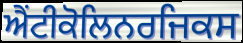
ਐਂਟੀਕੋਲਿਨਰਜਿਕਸ